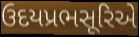
ઉદયપ્રભસૂરિએ